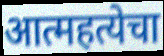
आत्महत्येचा